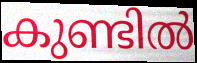
കുണ്ടിൽ